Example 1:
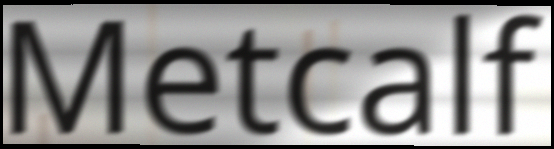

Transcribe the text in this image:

Metcalf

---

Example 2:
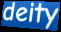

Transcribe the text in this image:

deity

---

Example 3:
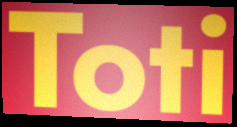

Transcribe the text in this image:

Toti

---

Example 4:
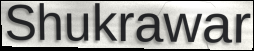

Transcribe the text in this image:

Shukrawar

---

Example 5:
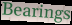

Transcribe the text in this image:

Bearings